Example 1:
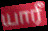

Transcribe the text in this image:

யாரீ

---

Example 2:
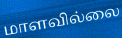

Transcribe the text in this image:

மாளவில்லை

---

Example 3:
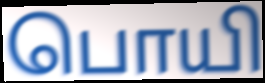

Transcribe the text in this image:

பொயி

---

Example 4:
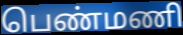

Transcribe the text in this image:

பெண்மணி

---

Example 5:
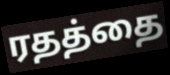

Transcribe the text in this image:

ரதத்தை